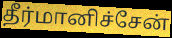
தீர்மானிச்சேன்